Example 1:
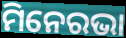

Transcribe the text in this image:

ମିନେରଭା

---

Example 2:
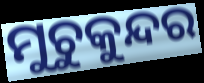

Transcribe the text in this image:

ମୁଚୁକୁନ୍ଦର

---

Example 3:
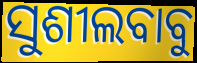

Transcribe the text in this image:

ସୁଶୀଲବାବୁ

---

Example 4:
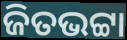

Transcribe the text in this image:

ଜିତଭଟ୍ଟା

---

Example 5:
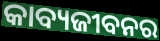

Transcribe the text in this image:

କାବ୍ୟଜୀବନର